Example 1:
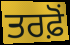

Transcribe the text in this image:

ਤਰਫ਼ੋਂ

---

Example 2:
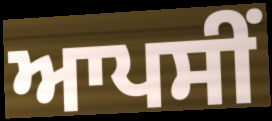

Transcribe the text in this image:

ਆਪਸੀਂ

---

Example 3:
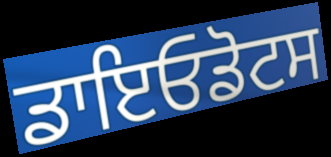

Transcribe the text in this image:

ਡਾਇਓਡੋਟਸ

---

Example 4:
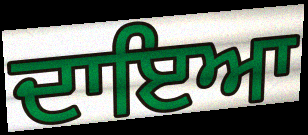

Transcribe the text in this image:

ਦਾਇਆ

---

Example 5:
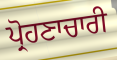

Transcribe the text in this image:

ਪ੍ਰੋਹਣਾਚਾਰੀ